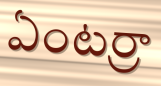
ఏంటర్రా